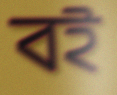
বই